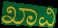
ಖಾವಿ